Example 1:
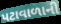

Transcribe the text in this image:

પટાવાળાની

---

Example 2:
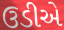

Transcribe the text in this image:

ઉડીએ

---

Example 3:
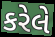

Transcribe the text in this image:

કરેલે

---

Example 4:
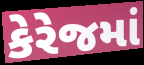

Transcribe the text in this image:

કેરેજમાં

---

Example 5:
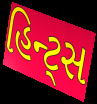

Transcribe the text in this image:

હિન્ટ્સ